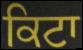
ਕਿਟਾ